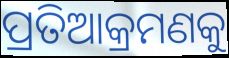
ପ୍ରତିଆକ୍ରମଣକୁ